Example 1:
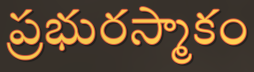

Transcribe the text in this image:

ప్రభురస్మాకం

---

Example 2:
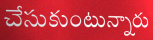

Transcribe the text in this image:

చేసుకుంటున్నారు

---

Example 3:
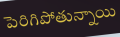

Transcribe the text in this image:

పెరిగిపోతున్నాయి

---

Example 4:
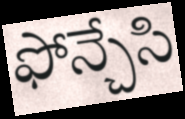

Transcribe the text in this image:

ఫోన్చేసి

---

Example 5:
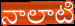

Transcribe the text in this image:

నాలాటి